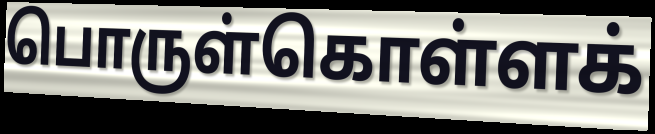
பொருள்கொள்ளக்